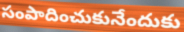
సంపాదించుకునేందుకు